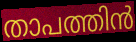
താപത്തിൻ